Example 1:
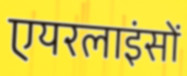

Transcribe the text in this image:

एयरलाइंसों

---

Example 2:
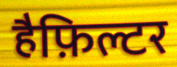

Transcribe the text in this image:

हैफ़िल्टर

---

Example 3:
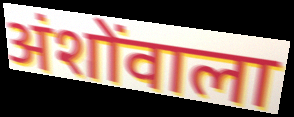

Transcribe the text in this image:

अंशोंवाला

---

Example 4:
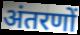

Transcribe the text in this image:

अंतरणों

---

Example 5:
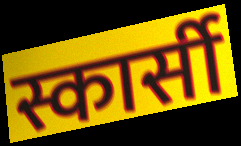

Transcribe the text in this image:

स्कार्सी